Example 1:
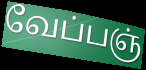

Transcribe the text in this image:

வேப்பஞ்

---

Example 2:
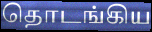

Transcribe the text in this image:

தொடங்கிய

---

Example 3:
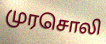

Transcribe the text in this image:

முரசொலி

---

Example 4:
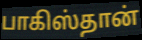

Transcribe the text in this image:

பாகிஸ்தான்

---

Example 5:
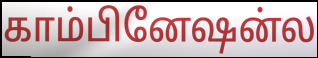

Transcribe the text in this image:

காம்பினேஷன்ல